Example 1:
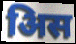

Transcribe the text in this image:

अिस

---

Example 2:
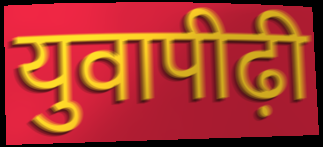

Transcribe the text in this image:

युवापीढ़ी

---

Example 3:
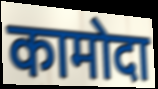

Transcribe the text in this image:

कामोदा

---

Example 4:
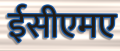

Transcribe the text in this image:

ईसीएमए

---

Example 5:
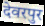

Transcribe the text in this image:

देवरपुर